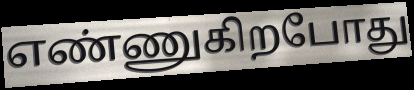
எண்ணுகிறபோது